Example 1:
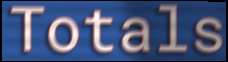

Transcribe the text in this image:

Totals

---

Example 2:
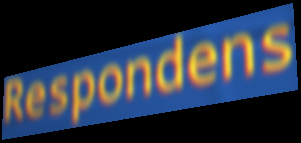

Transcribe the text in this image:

Respondens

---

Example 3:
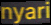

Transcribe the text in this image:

nyari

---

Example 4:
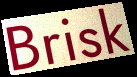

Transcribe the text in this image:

Brisk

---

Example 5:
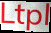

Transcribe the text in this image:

Ltpl